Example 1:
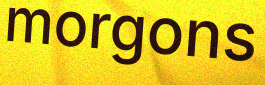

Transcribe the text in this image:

morgons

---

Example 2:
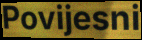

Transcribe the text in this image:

Povijesni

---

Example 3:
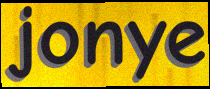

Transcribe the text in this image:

jonye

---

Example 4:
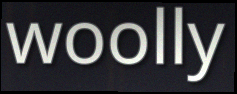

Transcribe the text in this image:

woolly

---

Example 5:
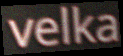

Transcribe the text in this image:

velka